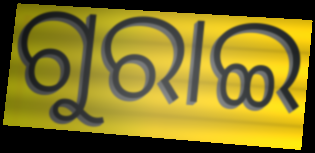
ଗୁରାଇ